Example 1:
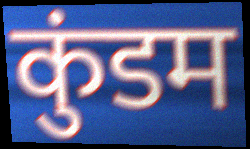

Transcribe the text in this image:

कुंडम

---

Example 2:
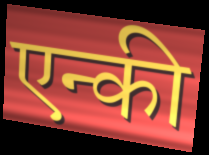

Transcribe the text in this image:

एन्की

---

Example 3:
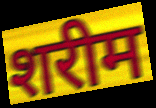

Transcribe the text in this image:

शरीम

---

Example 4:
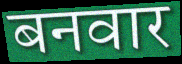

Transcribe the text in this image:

बनवार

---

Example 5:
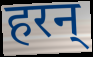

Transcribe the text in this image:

हरन्